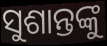
ସୁଶାନ୍ତଙ୍କୁ